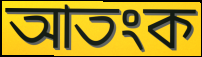
আতংক